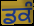
ਡਕੰ